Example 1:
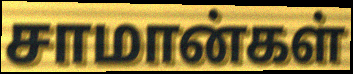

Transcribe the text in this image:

சாமான்கள்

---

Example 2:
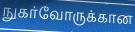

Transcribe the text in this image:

நுகர்வோருக்கான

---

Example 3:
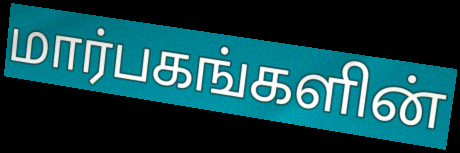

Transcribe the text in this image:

மார்பகங்களின்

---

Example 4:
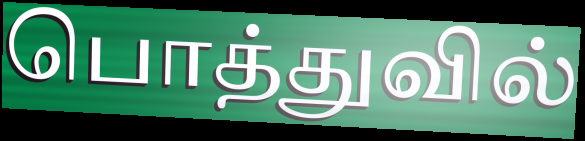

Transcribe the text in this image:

பொத்துவில்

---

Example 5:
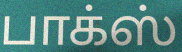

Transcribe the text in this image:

பாக்ஸ்